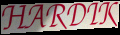
HARDIK